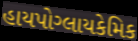
હાયપોગ્લાયકેમિક